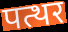
पत्थर